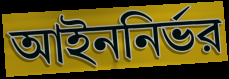
আইননির্ভর